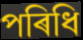
পৰিধি